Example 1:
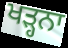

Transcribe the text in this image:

ਖੜ੍ਹਨਾ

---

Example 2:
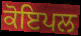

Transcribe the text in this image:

ਕੋਇਪਲ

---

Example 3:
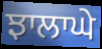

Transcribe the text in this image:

ਝਾਲਾਘੇ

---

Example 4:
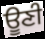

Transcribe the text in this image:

ਊਣੀ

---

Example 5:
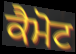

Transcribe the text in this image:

ਕੈਮੋਟ